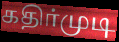
கதிர்முடி